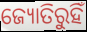
ଜ୍ୟୋତିରୁହିଁ